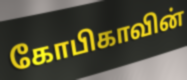
கோபிகாவின்